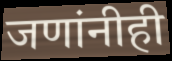
जणांनीही